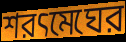
শরৎমেঘের